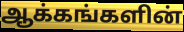
ஆக்கங்களின்